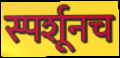
स्पर्शूनच